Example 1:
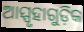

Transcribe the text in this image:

ଆସ୍ପୃହାଗୁଡ଼ିକ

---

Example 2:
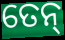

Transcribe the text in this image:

ତେନ୍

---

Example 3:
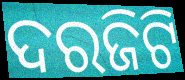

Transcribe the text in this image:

ଦରଜିଟି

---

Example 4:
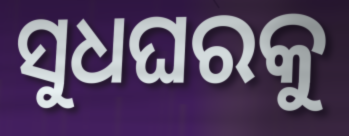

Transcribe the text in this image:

ସୁଧଘରକୁ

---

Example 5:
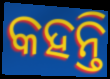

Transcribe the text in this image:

କହନ୍ତି